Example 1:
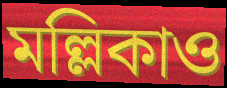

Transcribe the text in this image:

মল্লিকাও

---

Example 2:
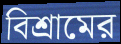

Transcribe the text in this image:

বিশ্রামের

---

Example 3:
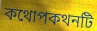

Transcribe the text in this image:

কথোপকথনটি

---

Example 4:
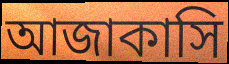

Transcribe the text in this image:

আজাকাসি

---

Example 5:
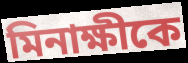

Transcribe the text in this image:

মিনাক্ষীকে